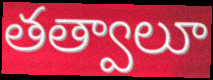
తత్వాలూ